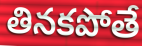
తినకపోతే